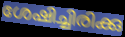
ശേഷിച്ചിരിക്കു